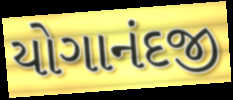
યોગાનંદજી